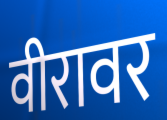
वीरावर